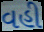
વહી